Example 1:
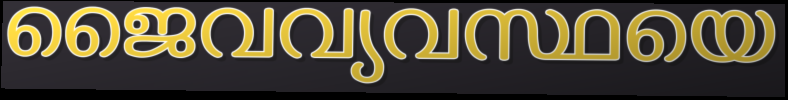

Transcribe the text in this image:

ജൈവവ്യവസ്ഥയെ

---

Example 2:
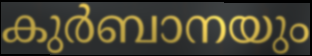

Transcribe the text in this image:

കുർബാനയും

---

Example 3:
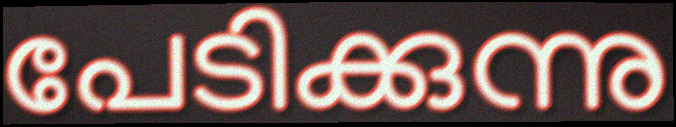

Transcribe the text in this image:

പേടിക്കുന്നു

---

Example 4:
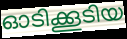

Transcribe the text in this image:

ഓടിക്കൂടിയ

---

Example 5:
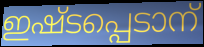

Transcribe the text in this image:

ഇഷ്ടപ്പെടാന്